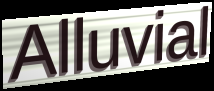
Alluvial